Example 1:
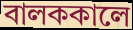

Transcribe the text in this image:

বালককালে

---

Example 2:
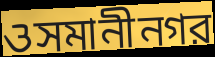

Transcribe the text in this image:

ওসমানীনগর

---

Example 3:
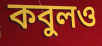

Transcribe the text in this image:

কবুলও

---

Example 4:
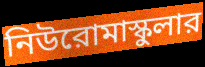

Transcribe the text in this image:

নিউরোমাস্কুলার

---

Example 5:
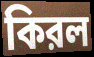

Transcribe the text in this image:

কিরল